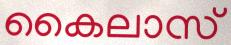
കൈലാസ്